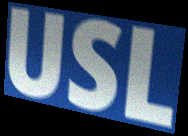
USL